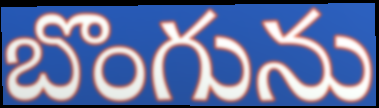
బొంగును